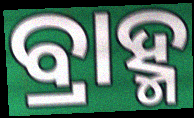
ବ୍ରାହ୍ମ